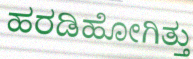
ಹರಡಿಹೋಗಿತ್ತು